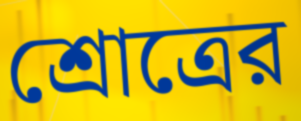
শ্রোত্রের